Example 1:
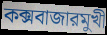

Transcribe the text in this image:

কক্সবাজারমুখী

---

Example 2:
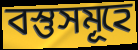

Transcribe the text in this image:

বস্তুসমূহে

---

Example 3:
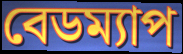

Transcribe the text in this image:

বেডম্যাপ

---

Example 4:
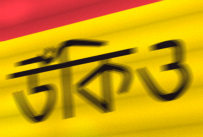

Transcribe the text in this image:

উঁকিও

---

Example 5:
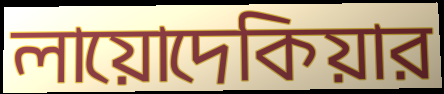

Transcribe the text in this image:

লায়োদেকিয়ার